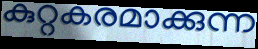
കുറ്റകരമാക്കുന്ന